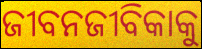
ଜୀବନଜୀବିକାକୁ